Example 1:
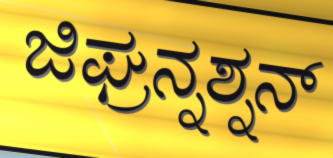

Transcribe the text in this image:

ಜಿಘ್ರನ್ನಶ್ನನ್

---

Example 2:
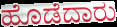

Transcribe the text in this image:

ಹೊಡೆದಾರು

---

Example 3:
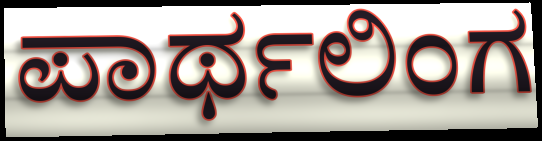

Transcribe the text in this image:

ಪಾರ್ಥಲಿಂಗ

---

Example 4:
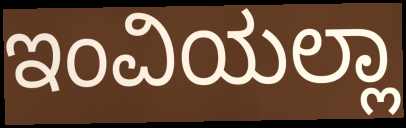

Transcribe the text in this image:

ಇಂವಿಯಲ್ಲಾ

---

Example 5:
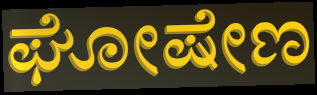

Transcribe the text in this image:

ಘೋಷೇಣ